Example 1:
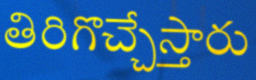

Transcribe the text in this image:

తిరిగొచ్చేస్తారు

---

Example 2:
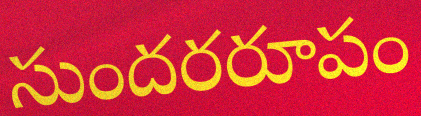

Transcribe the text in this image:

సుందరరూపం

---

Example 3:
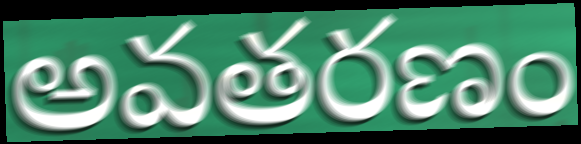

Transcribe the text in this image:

అవతరణం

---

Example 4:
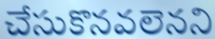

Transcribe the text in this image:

చేసుకొనవలెనని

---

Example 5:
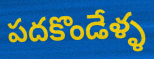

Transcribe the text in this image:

పదకొండేళ్ళ